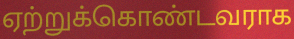
ஏற்றுக்கொண்டவராக